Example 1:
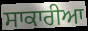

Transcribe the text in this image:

ਸਾਕਾਰੀਆ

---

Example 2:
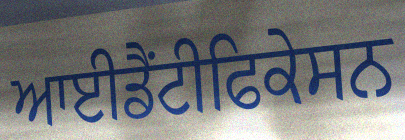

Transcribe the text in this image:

ਆਈਡੈਂਟੀਫਿਕੇਸਨ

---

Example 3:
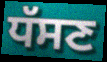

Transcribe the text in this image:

ਧੱਸਣ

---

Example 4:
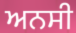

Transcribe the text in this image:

ਅਨਸੀ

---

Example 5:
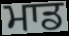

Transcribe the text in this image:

ਮਾਡ